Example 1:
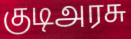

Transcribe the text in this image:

குடிஅரசு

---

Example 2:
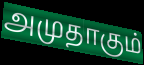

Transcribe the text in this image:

அமுதாகும்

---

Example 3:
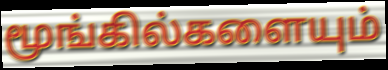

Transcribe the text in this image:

மூங்கில்களையும்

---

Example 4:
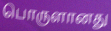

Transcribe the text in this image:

பொருளானது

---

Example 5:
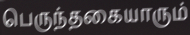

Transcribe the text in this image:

பெருந்தகையாரும்